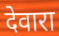
देवारा